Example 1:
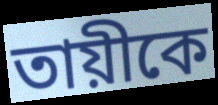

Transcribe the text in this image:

তায়ীকে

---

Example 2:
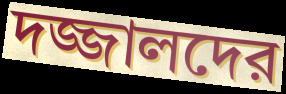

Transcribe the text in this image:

দজ্জালদের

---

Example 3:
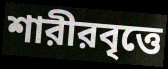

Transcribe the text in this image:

শারীরবৃত্তে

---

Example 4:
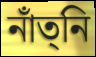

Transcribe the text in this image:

নাঁত্‌নি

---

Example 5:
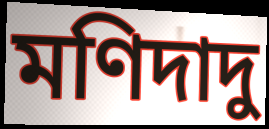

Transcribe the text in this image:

মণিদাদু